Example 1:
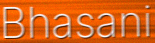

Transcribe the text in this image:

Bhasani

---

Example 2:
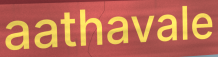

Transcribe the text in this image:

aathavale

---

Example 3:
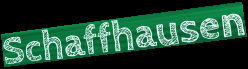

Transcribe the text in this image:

Schaffhausen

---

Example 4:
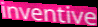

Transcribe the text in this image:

inventive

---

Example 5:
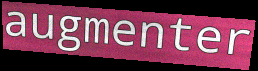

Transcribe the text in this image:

augmenter